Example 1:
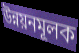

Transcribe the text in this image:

উন্নয়নমূলক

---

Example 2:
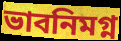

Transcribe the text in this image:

ভাবনিমগ্ন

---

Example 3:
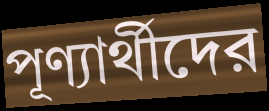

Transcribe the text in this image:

পূণ্যার্থীদের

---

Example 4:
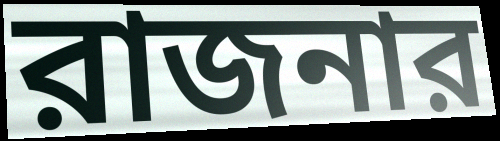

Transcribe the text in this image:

রাজনার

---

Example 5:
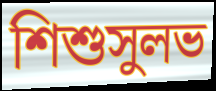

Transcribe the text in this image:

শিশুসুলভ